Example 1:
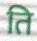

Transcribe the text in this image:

ति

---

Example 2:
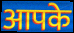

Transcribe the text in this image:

आपके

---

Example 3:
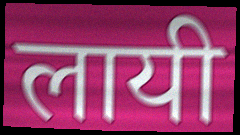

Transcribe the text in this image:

लायी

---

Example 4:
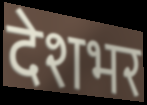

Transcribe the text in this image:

देशभर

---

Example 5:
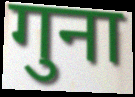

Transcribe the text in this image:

गुना